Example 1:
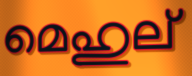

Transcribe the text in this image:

മെഹുല്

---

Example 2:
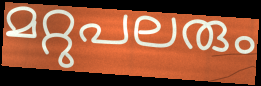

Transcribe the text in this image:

മറ്റുപലരും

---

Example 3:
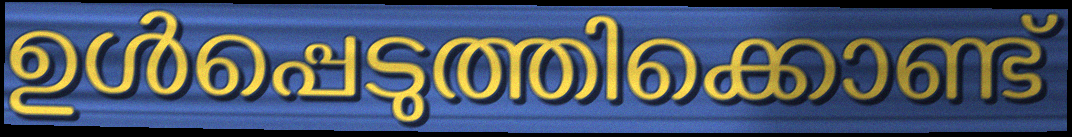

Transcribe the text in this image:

ഉൾപ്പെടുത്തിക്കൊണ്ട്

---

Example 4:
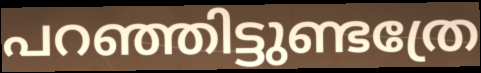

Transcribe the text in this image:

പറഞ്ഞിട്ടുണ്ടത്രേ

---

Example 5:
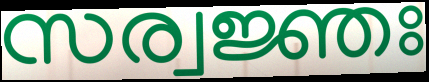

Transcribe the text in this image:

സര്വജ്ഞഃ